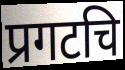
प्रगटचि